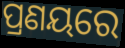
ପ୍ରଣୟରେ